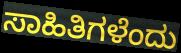
ಸಾಹಿತಿಗಳೆಂದು